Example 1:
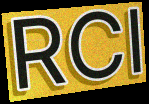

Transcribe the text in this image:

RCl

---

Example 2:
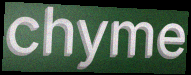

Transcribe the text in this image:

chyme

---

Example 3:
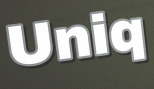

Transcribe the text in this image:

Uniq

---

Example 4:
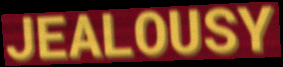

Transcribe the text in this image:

JEALOUSY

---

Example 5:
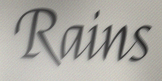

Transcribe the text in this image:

Rains